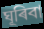
ঘূৰিবা